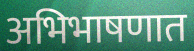
अभिभाषणात